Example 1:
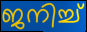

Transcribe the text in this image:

ജനിച്ച്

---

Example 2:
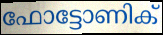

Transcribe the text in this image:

ഫോട്ടോണിക്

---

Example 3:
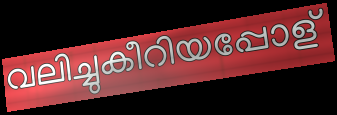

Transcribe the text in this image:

വലിച്ചുകീറിയപ്പോള്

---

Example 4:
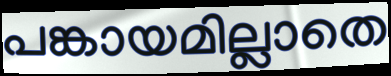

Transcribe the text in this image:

പങ്കായമില്ലാതെ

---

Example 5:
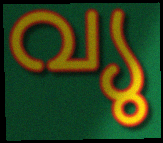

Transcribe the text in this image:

വ്യു